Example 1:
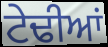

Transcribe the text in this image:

ਟੇਢੀਆਂ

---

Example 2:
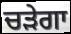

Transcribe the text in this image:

ਚੜੇਗਾ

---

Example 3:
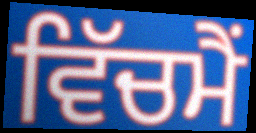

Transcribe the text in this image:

ਵਿੱਚਮੈਂ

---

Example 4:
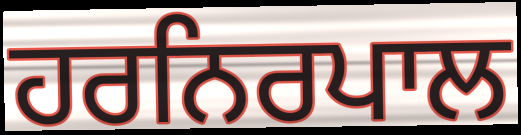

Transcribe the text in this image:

ਹਰਨਿਰਪਾਲ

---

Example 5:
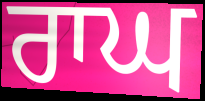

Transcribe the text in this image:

ਰਾਘ